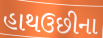
હાથઉછીના